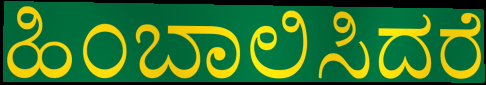
ಹಿಂಬಾಲಿಸಿದರೆ